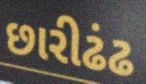
છારીઢંઢ